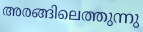
അരങ്ങിലെത്തുന്നു